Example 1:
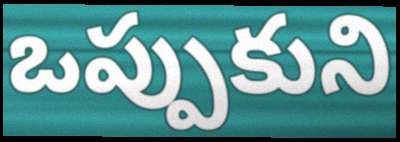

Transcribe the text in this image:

ఒప్పుకుని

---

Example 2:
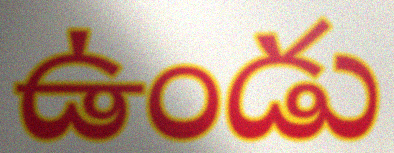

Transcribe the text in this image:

ఉండు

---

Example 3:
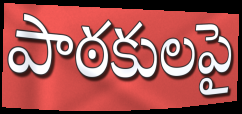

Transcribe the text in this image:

పాఠకులపై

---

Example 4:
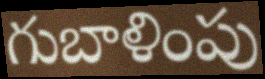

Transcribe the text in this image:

గుబాళింపు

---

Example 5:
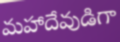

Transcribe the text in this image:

మహాదేవుడిగా